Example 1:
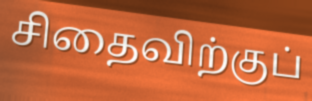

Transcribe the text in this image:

சிதைவிற்குப்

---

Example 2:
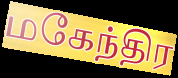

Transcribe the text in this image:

மகேந்திர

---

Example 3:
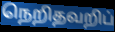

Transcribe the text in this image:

நெறிதவறிப்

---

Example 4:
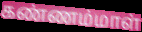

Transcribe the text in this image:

கண்ணம்மாள்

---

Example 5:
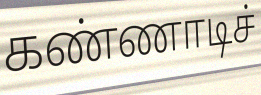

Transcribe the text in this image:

கண்ணாடிச்